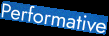
Performative